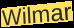
Wilmar